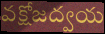
వక్షోజద్వయ